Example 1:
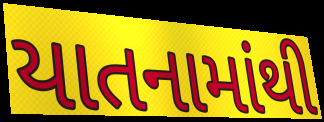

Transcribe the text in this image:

યાતનામાંથી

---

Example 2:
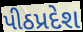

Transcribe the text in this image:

પીઠપ્રદેશ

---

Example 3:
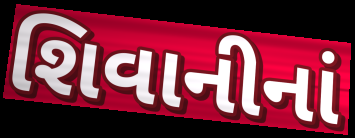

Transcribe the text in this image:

શિવાનીનાં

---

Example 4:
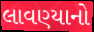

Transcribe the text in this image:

લાવણ્યાનો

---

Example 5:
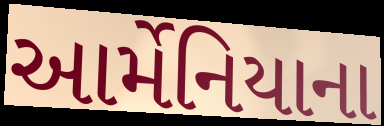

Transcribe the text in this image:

આર્મેનિયાના